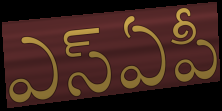
ఎస్ఏపీ